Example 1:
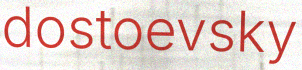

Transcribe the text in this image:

dostoevsky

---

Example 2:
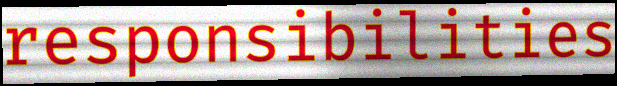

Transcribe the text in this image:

responsibilities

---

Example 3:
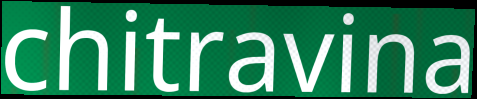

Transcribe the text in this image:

chitravina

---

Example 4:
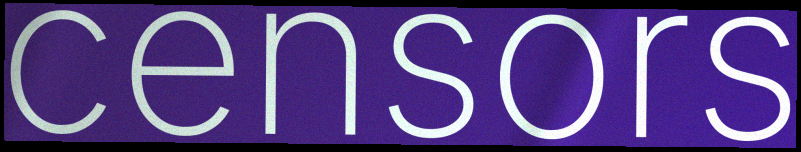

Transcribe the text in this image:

censors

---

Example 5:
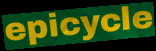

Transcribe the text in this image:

epicycle